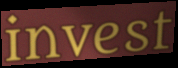
invest